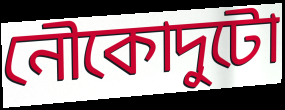
নৌকোদুটো